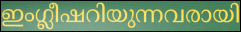
ഇംഗ്ലീഷറിയുന്നവരായി